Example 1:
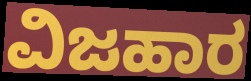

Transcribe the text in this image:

ವಿಜಹಾರ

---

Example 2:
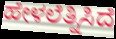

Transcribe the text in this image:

ಹೇಳಲೆತ್ನಿಸಿದೆ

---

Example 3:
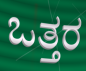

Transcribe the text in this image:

ಒತ್ತರ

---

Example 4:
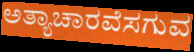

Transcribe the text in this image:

ಅತ್ಯಾಚಾರವೆಸಗುವ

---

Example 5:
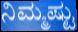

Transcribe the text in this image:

ನಿಮ್ಮಷ್ಟು